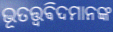
ଭୂତତ୍ତ୍ୱଵିଦମାନଙ୍କ